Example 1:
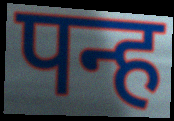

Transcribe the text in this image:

पन्ह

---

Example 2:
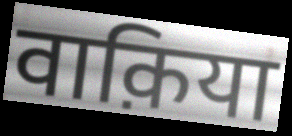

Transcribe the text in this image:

वाक़िया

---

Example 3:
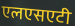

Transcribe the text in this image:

एलएसएटी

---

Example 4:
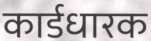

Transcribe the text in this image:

कार्डधारक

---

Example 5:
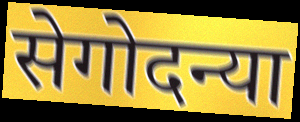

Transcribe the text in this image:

सेगोदन्या